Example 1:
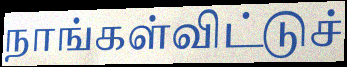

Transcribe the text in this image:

நாங்கள்விட்டுச்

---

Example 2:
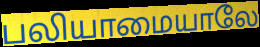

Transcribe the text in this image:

பலியாமையாலே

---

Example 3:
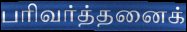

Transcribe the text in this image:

பரிவர்த்தனைக்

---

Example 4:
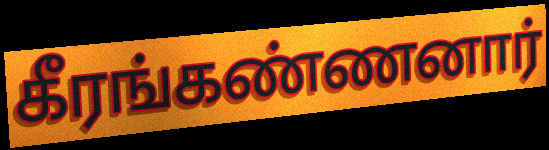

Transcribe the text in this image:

கீரங்கண்ணனார்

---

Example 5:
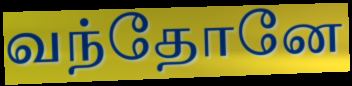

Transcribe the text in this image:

வந்தோனே